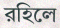
রহিলে